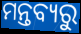
ମନ୍ତବ୍ୟରୁ